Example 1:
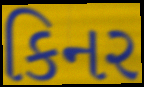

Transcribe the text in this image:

કિનર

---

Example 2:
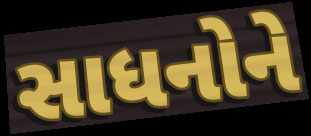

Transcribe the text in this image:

સાધનોને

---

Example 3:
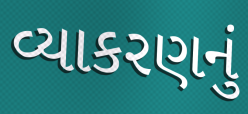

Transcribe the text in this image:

વ્યાકરણનું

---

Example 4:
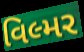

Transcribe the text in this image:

વિલ્મર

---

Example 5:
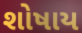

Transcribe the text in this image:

શોષાય